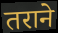
तराने